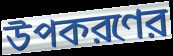
উপকরণের